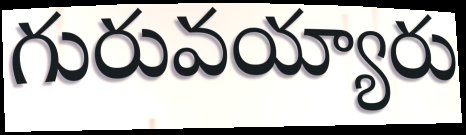
గురువయ్యారు